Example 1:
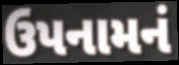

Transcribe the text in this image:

ઉપનામનં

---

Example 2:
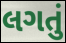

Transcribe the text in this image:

લગતું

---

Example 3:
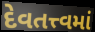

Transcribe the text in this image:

દેવતત્ત્વમાં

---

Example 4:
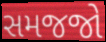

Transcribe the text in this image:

સમજજો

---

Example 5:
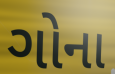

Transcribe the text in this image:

ગોના